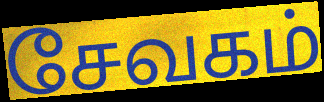
சேவகம்